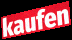
kaufen